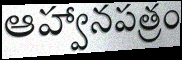
ఆహ్వానపత్రం